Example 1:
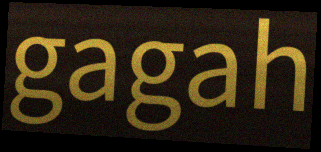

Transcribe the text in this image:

gagah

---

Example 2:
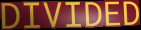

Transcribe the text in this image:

DIVIDED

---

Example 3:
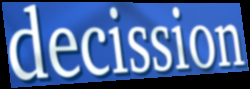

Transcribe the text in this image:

decission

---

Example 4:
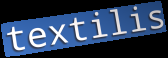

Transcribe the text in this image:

textilis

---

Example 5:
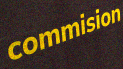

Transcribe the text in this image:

commision